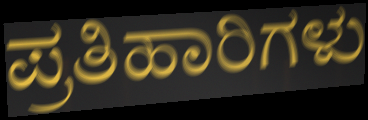
ಪ್ರತಿಹಾರಿಗಳು